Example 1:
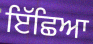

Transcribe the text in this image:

ਇੱਛਿਆ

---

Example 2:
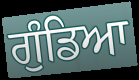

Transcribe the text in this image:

ਗੁੰਡਿਆ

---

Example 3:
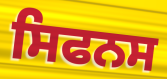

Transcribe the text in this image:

ਸਿਫਨਸ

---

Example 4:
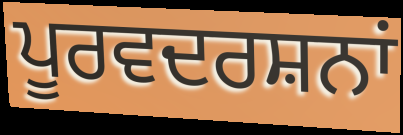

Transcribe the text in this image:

ਪੂਰਵਦਰਸ਼ਨਾਂ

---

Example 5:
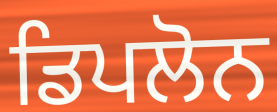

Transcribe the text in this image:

ਡਿਪਲੋਨ